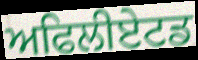
ਅਫਿਲੀਏਟਡ